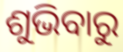
ଶୁଭିବାରୁ